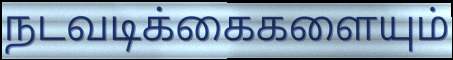
நடவடிக்கைகளையும்